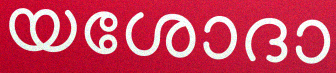
യശോദാ